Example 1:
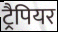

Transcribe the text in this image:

ट्रैपियर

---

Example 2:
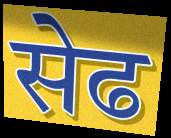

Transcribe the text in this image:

सेढ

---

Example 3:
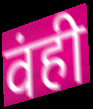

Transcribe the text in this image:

वंही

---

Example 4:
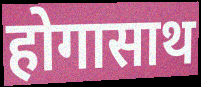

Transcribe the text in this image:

होगासाथ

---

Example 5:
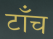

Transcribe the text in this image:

टाँच